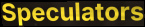
Speculators